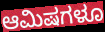
ಆಮಿಷಗಳೂ